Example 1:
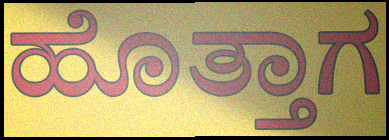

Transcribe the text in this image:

ಹೊತ್ತಾಗ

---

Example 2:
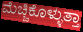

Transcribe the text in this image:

ಮೆಚ್ಚಿಕೊಳ್ಳುತ್ತಾ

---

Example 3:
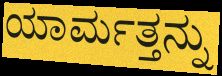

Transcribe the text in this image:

ಯಾರ್ಮತ್ತನ್ನು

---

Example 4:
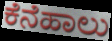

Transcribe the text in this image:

ಕೆನೆಹಾಲು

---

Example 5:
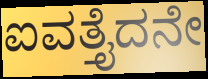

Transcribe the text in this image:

ಐವತ್ತೈದನೇ